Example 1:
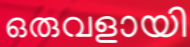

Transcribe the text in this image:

ഒരുവളായി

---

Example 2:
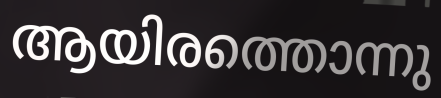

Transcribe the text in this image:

ആയിരത്തൊന്നു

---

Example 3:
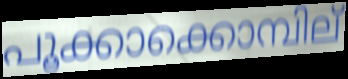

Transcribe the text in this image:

പൂക്കാക്കൊമ്പില്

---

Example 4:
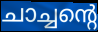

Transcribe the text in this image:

ചാച്ചന്റെ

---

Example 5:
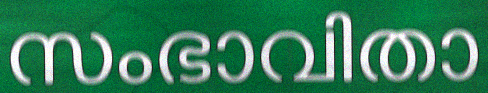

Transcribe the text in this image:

സംഭാവിതാ